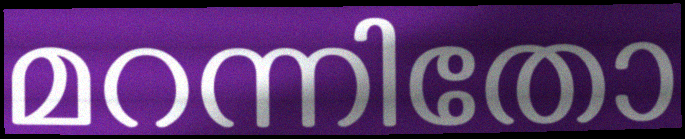
മറന്നിതോ